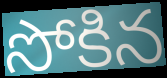
సోకిన